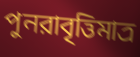
পুনরাবৃত্তিমাত্র